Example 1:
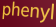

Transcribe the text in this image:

phenyl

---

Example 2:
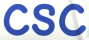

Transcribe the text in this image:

csc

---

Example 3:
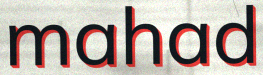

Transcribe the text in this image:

mahad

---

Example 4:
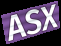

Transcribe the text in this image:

ASX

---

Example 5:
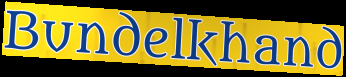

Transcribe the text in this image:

Bundelkhand